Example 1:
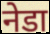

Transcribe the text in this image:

नेडा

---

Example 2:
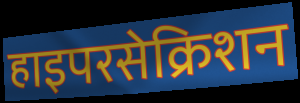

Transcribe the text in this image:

हाइपरसेक्रिशन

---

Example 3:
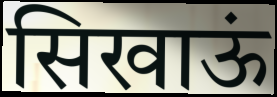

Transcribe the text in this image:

सिखाऊं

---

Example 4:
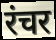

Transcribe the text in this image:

रंचर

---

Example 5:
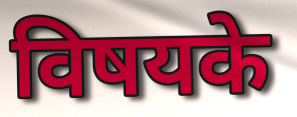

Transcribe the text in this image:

विषयके